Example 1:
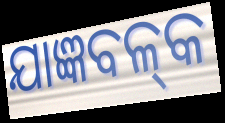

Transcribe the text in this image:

ଯାଜ୍ଞବଳ୍‌କ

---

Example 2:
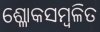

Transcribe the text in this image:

ଶ୍ଳୋକସମ୍ବଳିତ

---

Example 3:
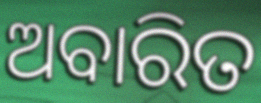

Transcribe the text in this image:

ଅବାରିତ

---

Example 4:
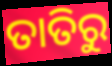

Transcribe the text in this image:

ତାତିରୁ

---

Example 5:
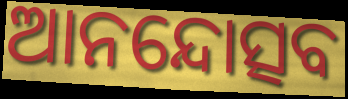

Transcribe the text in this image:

ଆନନ୍ଦୋତ୍ସବ